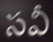
సవీ